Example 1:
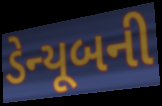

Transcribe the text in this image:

ડેન્યૂબની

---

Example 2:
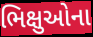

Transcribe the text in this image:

ભિક્ષુઓના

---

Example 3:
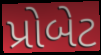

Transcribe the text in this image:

પ્રોબેટ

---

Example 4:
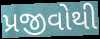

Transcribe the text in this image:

પ્રજીવોથી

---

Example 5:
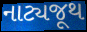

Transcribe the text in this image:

નાટ્યજૂથ